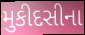
મુકીદસીના